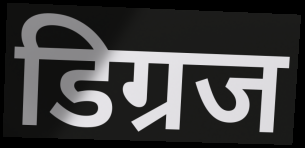
डिग्रज